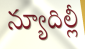
న్యూదిల్లీ